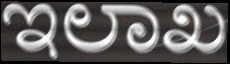
ಇಲಾಖ